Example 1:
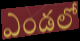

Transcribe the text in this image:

ఎండలో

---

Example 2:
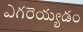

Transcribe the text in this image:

ఎగరెయ్యడం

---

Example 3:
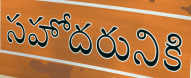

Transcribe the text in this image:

సహోదరునికి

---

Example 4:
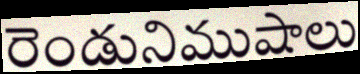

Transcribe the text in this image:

రెండునిముషాలు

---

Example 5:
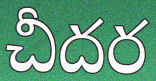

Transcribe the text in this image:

చీదర